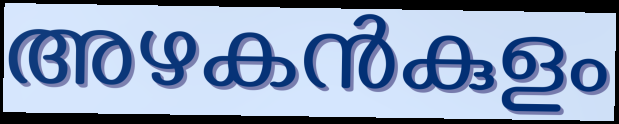
അഴകൻകുളം